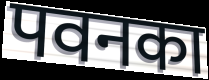
पवनका